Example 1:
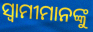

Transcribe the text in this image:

ସ୍ବାମୀମାନଙ୍କୁ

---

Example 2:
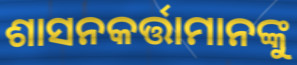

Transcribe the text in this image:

ଶାସନକର୍ତ୍ତାମାନଙ୍କୁ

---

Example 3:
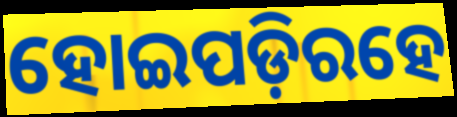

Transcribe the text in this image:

ହୋଇପଡ଼ିରହେ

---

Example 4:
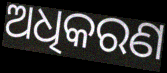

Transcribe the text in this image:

ଅଧିକରଣ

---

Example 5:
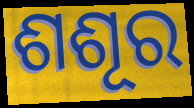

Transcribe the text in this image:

ଶଶୂର